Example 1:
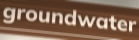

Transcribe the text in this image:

groundwater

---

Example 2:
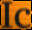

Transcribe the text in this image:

Ic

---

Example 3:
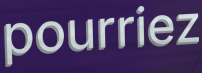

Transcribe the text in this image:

pourriez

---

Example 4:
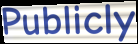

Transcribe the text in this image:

Publicly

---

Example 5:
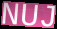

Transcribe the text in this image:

NUJ